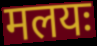
मलयः